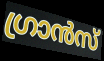
ഗ്രാൻസ്